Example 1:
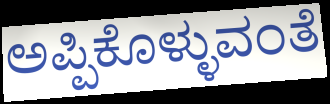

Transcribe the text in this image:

ಅಪ್ಪಿಕೊಳ್ಳುವಂತೆ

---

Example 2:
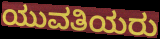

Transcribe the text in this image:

ಯುವತಿಯರು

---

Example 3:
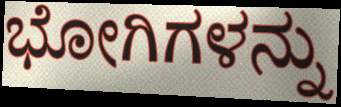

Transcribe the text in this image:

ಭೋಗಿಗಳನ್ನು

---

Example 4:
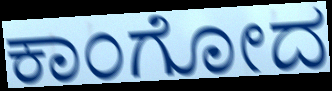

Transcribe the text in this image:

ಕಾಂಗೋದ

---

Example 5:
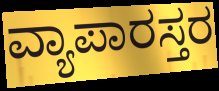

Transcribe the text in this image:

ವ್ಯಾಪಾರಸ್ತರ